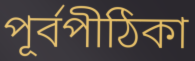
পূর্বপীঠিকা